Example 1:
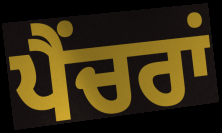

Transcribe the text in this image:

ਪੈਂਚਰਾਂ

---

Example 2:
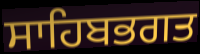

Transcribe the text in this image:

ਸਾਹਿਬਭਗਤ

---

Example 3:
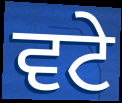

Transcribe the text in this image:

ਵਟੇ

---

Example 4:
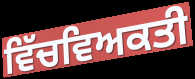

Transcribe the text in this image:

ਵਿੱਚਵਿਅਕਤੀ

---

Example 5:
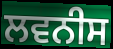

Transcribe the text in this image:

ਲਵਨੀਸ